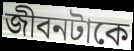
জীবনটাকে